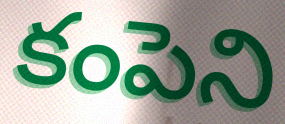
కంపెని